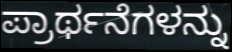
ಪ್ರಾರ್ಥನೆಗಳನ್ನು